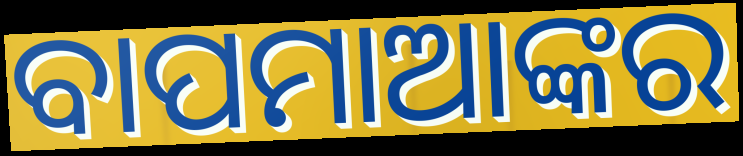
ବାପମାଆଙ୍କର